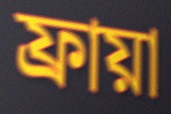
ফ্রায়া